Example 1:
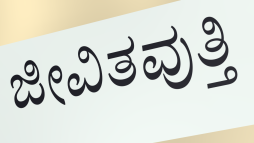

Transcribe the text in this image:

ಜೀವಿತವುತ್ತಿ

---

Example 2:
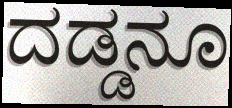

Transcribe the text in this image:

ದಡ್ಡನೂ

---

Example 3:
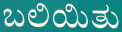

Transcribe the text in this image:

ಬಲಿಯಿತು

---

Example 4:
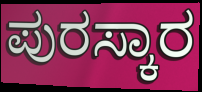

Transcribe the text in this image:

ಪುರಸ್ಕಾರ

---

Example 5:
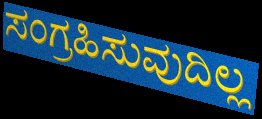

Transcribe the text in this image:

ಸಂಗ್ರಹಿಸುವುದಿಲ್ಲ